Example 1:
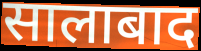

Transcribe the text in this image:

सालाबाद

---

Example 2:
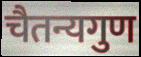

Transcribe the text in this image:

चैतन्यगुण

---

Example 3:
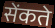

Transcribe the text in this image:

सेंकते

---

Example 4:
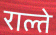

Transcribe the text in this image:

राल्ते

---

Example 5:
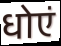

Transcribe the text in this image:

धोएं